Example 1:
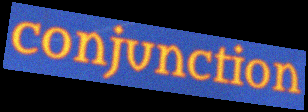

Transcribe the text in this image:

conjunction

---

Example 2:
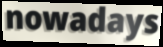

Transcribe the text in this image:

nowadays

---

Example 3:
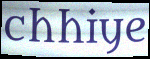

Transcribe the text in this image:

chhiye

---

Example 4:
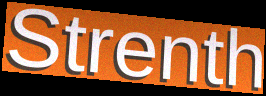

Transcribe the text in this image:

Strenth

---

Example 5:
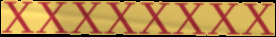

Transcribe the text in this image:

XXXXXXXX